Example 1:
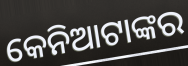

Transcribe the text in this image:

କେନିଆଟାଙ୍କର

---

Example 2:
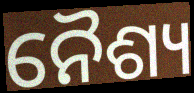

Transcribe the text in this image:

ନୈଶ୍ୟ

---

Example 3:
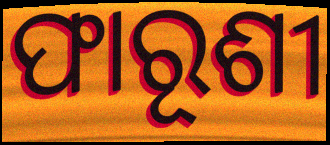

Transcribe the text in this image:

ଫାରୂଶୀ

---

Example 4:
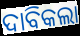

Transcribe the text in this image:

ଦାବିକଲା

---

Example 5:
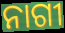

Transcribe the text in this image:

ନାଗୀ